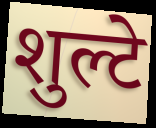
शुल्टे